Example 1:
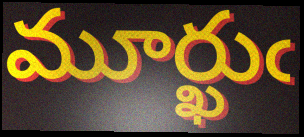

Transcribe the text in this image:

మూర్ఖుఁ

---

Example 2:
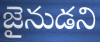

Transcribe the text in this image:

జైనుడని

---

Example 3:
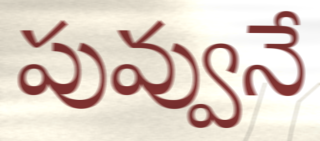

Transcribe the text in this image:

పువ్వునే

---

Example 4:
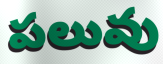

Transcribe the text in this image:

పలువు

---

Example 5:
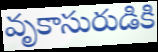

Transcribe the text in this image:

వృకాసురుడికి